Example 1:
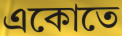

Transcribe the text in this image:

একোতে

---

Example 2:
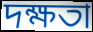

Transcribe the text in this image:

দক্ষতা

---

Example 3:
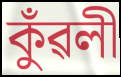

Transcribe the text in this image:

কুঁৱলী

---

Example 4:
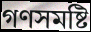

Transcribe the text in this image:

গণসমষ্টি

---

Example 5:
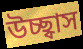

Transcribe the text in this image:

উচ্ছ্বাস